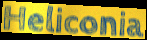
Heliconia